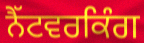
ਨੈੱਟਵਰਕਿੰਗ